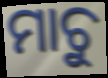
ମାଚୁ